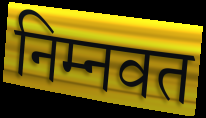
निम्नवत